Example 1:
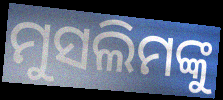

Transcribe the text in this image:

ମୁସଲିମଙ୍କୁ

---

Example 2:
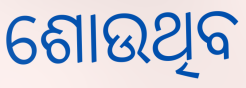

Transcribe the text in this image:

ଶୋଉଥିବ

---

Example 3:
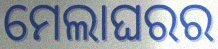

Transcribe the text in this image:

ମେଲାଘରର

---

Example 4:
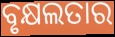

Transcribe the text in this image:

ବୃକ୍ଷଲତାର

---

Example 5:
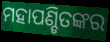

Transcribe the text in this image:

ମହାପଣ୍ଡିତଙ୍କର